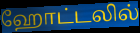
ஹோட்டலில்